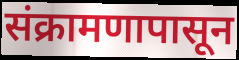
संक्रामणापासून